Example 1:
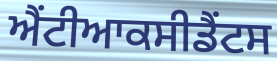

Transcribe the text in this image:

ਐਂਟੀਆਕਸੀਡੈਂਟਸ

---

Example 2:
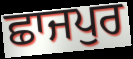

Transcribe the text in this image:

ਛਾਜਪੁਰ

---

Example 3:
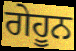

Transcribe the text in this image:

ਗੇਹੂਨ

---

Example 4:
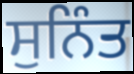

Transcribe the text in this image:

ਸੁਨਿੰਤ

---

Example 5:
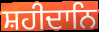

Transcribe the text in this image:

ਸ਼ਹੀਦਾਨਿ